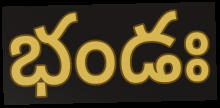
భండః